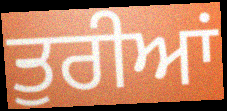
ਤੁਰੀਆਂ